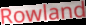
Rowland